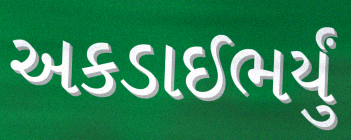
અકડાઈભર્યું